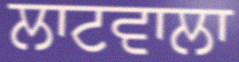
ਲਾਟਵਾਲਾ